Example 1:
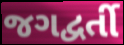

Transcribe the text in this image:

જગદ્વર્તી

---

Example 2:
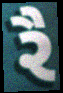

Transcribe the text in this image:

રૈ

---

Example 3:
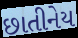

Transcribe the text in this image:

છાતીનેય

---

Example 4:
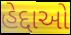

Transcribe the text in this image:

હેદ્દાઓ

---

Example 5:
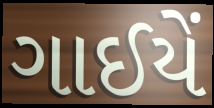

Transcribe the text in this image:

ગાઈયેં